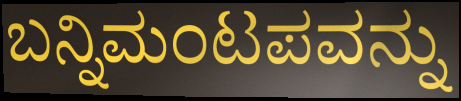
ಬನ್ನಿಮಂಟಪವನ್ನು